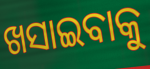
ଖସାଇବାକୁ